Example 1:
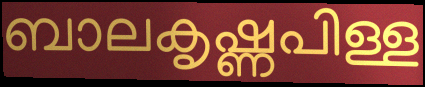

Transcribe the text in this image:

ബാലകൃഷ്ണപിള്ള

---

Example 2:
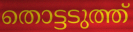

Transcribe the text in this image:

തൊട്ടടുത്ത്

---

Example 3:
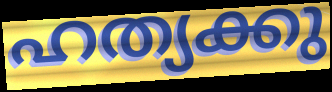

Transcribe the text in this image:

ഹത്യക്കു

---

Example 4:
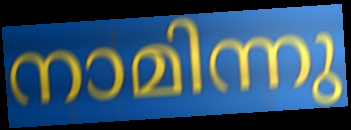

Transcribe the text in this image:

നാമിന്നു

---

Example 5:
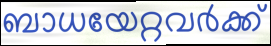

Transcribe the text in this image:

ബാധയേറ്റവർക്ക്